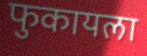
फुकायला